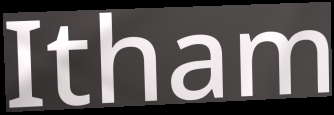
Itham